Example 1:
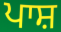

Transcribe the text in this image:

ਪਾਸ਼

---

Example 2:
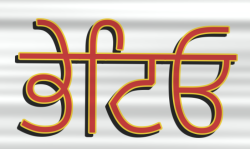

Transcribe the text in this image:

ਭੇਟਿਓ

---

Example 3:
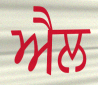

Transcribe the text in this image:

ਐਲ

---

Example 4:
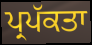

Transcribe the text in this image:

ਪ੍ਰਪੱਕਤਾ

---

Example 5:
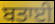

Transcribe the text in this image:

ਬਤਾਈ